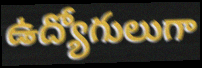
ఉద్యోగులుగా